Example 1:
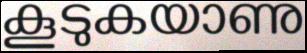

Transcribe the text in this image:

കൂടുകയാണു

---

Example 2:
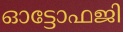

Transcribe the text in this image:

ഓട്ടോഫജി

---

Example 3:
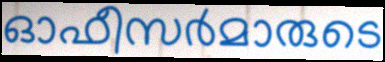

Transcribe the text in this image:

ഓഫീസർമാരുടെ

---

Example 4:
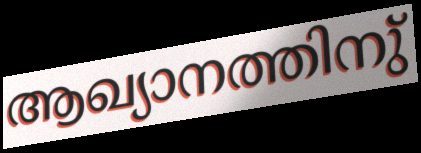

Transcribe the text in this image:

ആഖ്യാനത്തിനു്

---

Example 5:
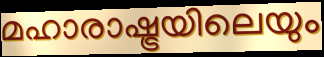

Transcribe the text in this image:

മഹാരാഷ്ട്രയിലെയും